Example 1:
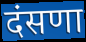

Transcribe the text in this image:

दंसणा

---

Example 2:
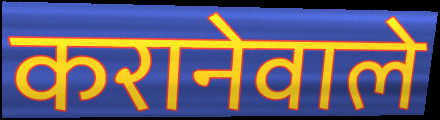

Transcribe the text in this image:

करानेवाले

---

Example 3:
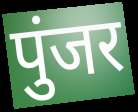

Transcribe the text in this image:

पुंजर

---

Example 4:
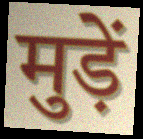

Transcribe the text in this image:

मुड़ें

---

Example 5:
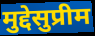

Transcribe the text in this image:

मुद्देसुप्रीम